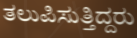
ತಲುಪಿಸುತ್ತಿದ್ದರು